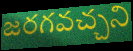
జరగవచ్చని